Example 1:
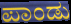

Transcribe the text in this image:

ಪಾಂಡು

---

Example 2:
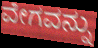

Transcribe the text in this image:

ವೇಗವನ್ನು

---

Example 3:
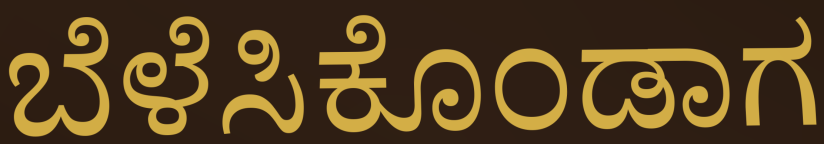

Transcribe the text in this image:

ಬೆಳೆಸಿಕೊಂಡಾಗ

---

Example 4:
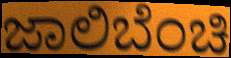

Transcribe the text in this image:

ಜಾಲಿಬೆಂಚಿ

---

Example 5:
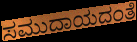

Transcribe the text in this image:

ಸಮುದಾಯದಂತೆ